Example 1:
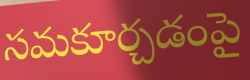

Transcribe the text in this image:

సమకూర్చడంపై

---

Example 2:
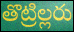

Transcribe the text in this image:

తొట్రిల్లరు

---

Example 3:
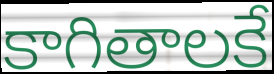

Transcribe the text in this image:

కాగితాలకే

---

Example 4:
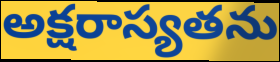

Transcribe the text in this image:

అక్షరాస్యతను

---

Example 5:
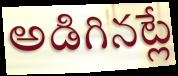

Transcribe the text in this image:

అడిగినట్లే